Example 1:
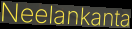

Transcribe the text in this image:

Neelankanta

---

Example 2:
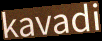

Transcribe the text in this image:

kavadi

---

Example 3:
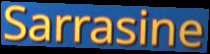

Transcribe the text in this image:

Sarrasine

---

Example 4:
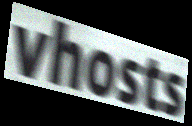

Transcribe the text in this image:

vhosts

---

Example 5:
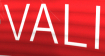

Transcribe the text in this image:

VALI